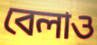
বেলাও